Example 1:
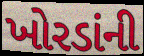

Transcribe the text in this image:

ખોરડાંની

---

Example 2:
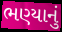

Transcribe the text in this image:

ભણ્યાનું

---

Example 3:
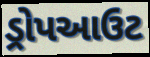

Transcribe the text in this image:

ડ્રોપઆઉટ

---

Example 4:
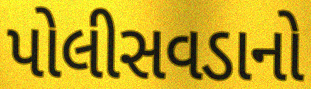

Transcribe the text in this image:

પોલીસવડાનો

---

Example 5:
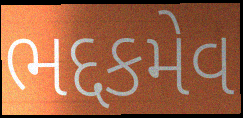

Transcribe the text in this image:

ભદ્દકમેવ